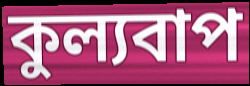
কুল্যবাপ